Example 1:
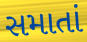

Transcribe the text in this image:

સમાતાં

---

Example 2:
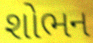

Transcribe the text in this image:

શોભન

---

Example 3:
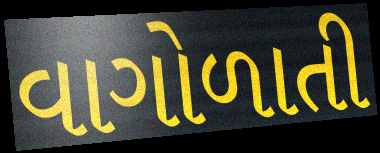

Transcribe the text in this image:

વાગોળાતી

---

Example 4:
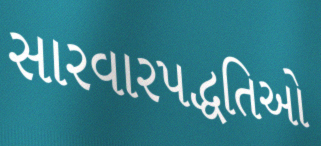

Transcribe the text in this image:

સારવારપદ્ધતિઓ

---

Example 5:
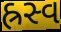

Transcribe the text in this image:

હ્રસ્વ